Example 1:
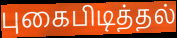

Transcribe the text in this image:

புகைபிடித்தல்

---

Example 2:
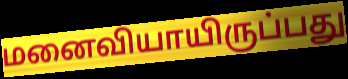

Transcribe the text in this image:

மனைவியாயிருப்பது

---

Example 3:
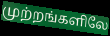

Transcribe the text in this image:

முற்றங்களிலே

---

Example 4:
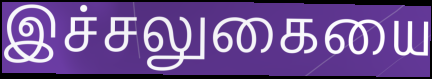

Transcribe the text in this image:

இச்சலுகையை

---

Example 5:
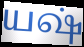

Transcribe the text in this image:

யஷ்